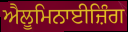
ਐਲੂਮਿਨਾਈਜ਼ਿੰਗ